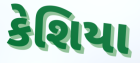
કેશિયા